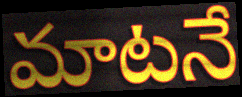
మాటనే